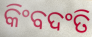
କିଂବଦଂତି